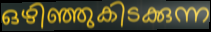
ഒഴിഞ്ഞുകിടക്കുന്ന